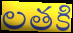
లతకి